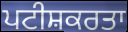
ਪਟੀਸ਼ਕਰਤਾ